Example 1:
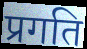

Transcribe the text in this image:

प्रगति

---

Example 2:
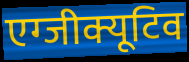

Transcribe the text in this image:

एग्जीक्यूटिव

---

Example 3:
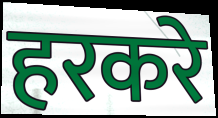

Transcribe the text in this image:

हरकरे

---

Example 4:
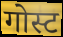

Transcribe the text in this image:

गोस्ट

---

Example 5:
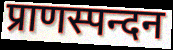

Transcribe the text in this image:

प्राणस्पन्दन